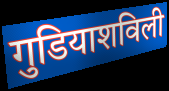
गुडियाशविली